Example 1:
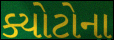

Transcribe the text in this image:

ક્યોટોના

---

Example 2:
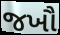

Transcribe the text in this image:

જખૌ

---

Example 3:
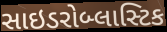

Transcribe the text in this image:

સાઇડરોબ્લાસ્ટિક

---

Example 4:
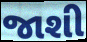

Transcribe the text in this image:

જાશી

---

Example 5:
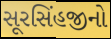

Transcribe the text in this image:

સૂરસિંહજીનો